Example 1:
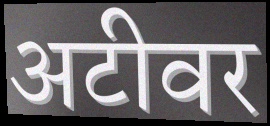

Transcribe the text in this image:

अटीवर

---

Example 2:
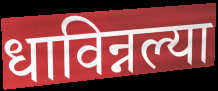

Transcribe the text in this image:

धाविन्नल्या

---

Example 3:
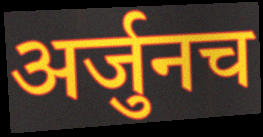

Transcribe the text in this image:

अर्जुनच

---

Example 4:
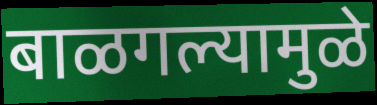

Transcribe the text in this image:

बाळगल्यामुळे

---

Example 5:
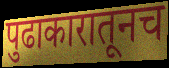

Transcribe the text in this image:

पुढाकारातूनच